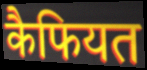
कैफियत